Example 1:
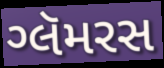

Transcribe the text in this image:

ગ્લૅમરસ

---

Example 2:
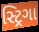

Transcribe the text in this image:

સ્ટ્રિગા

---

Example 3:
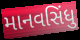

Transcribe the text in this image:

માનવસિંધુ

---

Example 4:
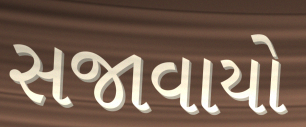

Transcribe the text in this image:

સજાવાયો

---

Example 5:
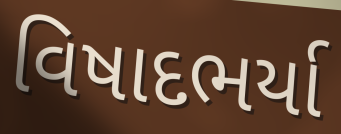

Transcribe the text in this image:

વિષાદભર્યા